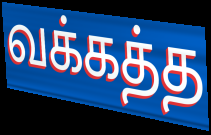
வக்கத்த